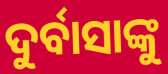
ଦୁର୍ବାସାଙ୍କୁ